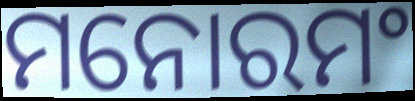
ମନୋରମଂ